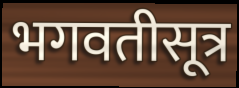
भगवतीसूत्र